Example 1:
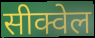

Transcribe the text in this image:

सीक्वेल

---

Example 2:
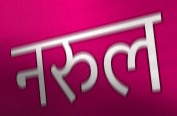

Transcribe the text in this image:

नरुल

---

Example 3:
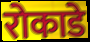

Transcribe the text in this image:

रोकाडे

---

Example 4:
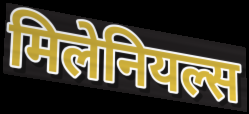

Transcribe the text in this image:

मिलेनियल्स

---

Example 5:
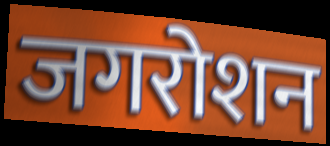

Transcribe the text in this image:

जगरोशन